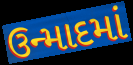
ઉન્માદમાં